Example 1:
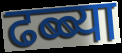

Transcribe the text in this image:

ढब्ब्या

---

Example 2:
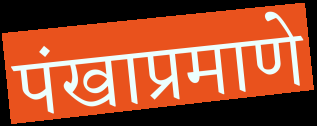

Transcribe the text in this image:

पंखाप्रमाणे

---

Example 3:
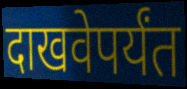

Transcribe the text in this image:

दाखवेपर्यंत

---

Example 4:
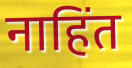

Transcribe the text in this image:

नाहिंत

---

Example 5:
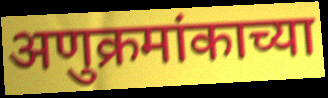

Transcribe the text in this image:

अणुक्रमांकाच्या